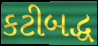
કટીબદ્ધ